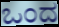
ಒಂದ